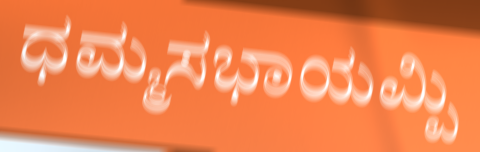
ಧಮ್ಮಸಭಾಯಮ್ಪಿ